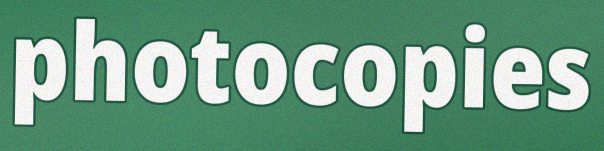
photocopies